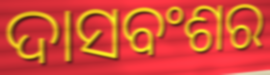
ଦାସବଂଶର